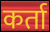
कर्ता